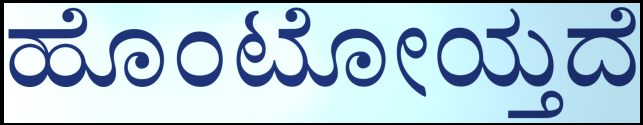
ಹೊಂಟೋಯ್ತದೆ